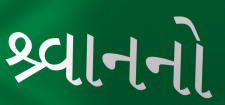
શ્ર્વાનનો